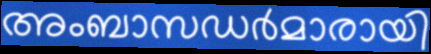
അംബാസഡർമാരായി